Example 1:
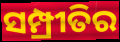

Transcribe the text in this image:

ସମ୍ପ୍ରୀତିର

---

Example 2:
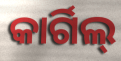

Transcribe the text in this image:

କାର୍ଗିଲ୍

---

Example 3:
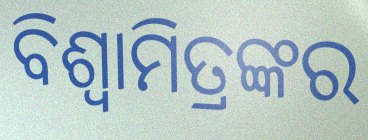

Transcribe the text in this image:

ବିଶ୍ୱାମିତ୍ରଙ୍କର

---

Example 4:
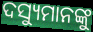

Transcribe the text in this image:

ଦସ୍ୟୁମାନଙ୍କୁ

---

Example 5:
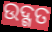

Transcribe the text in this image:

ଉଦ୍ଗତ